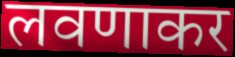
लवणाकर